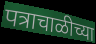
पत्राचाळीच्या